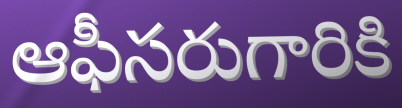
ఆఫీసరుగారికి